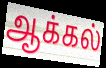
ஆக்கல்